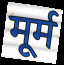
मूर्म